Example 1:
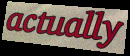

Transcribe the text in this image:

actually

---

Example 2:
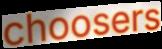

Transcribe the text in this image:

choosers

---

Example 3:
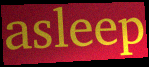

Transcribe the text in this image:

asleep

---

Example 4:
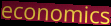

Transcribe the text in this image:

economics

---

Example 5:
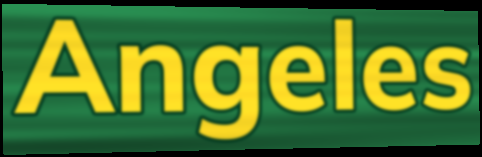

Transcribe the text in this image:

Angeles